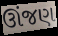
ઊંજણ